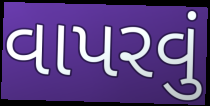
વાપરવું